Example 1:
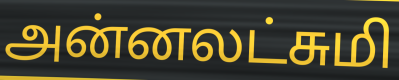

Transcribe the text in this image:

அன்னலட்சுமி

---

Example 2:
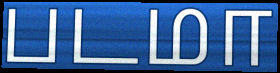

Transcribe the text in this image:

படமா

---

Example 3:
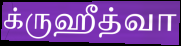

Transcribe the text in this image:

க்ருஹீத்வா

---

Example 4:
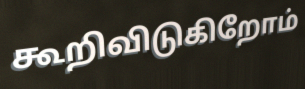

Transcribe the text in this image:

கூறிவிடுகிறோம்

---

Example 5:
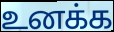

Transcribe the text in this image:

உனக்க